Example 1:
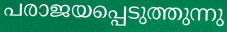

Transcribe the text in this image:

പരാജയപ്പെടുത്തുന്നു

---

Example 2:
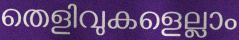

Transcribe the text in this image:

തെളിവുകളെല്ലാം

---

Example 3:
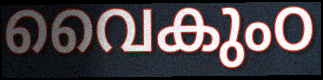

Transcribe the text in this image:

വൈകുംഠ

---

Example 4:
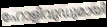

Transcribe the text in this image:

ഹോളിവുഡുമായി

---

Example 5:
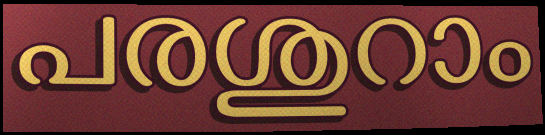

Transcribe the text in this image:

പരശുറാം